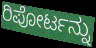
ರಿಪೋರ್ಟನ್ನು